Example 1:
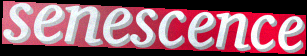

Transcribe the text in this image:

senescence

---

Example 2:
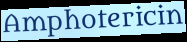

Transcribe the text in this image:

Amphotericin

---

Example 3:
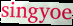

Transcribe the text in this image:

singyoe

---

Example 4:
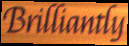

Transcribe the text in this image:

Brilliantly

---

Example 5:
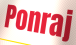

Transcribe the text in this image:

Ponraj